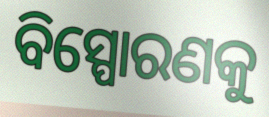
ବିସ୍ପୋରଣକୁ